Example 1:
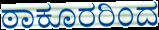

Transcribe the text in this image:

ಠಾಕೂರರಿಂದ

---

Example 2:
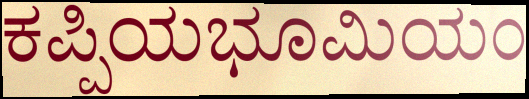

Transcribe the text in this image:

ಕಪ್ಪಿಯಭೂಮಿಯಂ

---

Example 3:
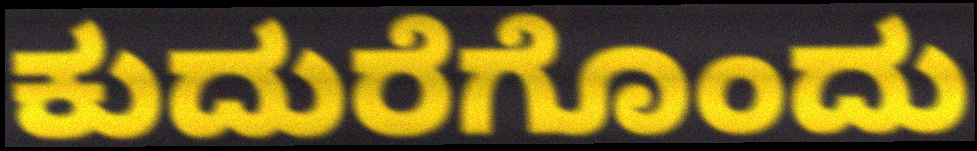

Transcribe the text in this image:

ಕುದುರೆಗೊಂದು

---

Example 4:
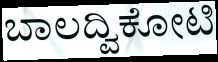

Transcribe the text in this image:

ಬಾಲದ್ವಿಕೋಟಿ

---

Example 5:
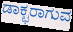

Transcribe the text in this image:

ಡಾಕ್ಟರಾಗುವ